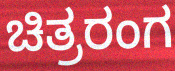
ಚಿತ್ರರಂಗ